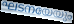
ഘടനയേയും